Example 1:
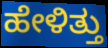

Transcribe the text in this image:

ಹೇಳಿತ್ತು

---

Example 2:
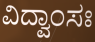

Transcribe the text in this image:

ವಿದ್ವಾಂಸಃ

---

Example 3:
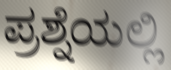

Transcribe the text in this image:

ಪ್ರಶ್ನೆಯಲ್ಲಿ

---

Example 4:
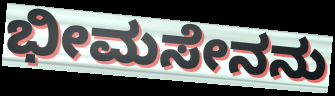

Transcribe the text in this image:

ಭೀಮಸೇನನು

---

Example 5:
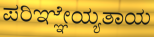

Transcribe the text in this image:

ಪರಿಞ್ಞೇಯ್ಯತಾಯ